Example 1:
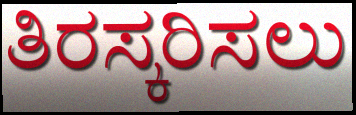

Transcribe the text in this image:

ತಿರಸ್ಕರಿಸಲು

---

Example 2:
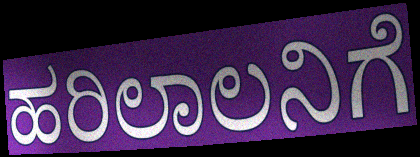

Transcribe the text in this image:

ಹರಿಲಾಲನಿಗೆ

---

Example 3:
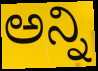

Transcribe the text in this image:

ಅನ್ನಿ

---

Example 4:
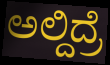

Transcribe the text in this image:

ಅಲ್ದಿದ್ರೆ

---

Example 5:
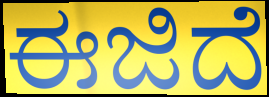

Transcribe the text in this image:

ಈಜಿದೆ